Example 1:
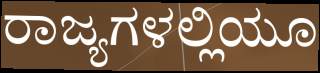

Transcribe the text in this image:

ರಾಜ್ಯಗಳಲ್ಲಿಯೂ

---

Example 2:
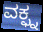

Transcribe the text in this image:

ವಕ್ಫ್ನ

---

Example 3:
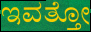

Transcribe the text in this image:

ಇವತ್ತೋ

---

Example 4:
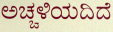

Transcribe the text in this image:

ಅಚ್ಚಳಿಯದಿದೆ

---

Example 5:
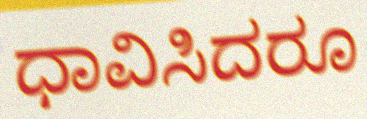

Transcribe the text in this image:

ಧಾವಿಸಿದರೂ